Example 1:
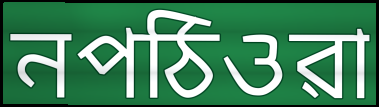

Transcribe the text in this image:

নপঠিওৱা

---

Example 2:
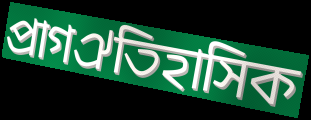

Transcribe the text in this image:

প্ৰাগঐতিহাসিক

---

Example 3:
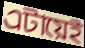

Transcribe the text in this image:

এটায়েই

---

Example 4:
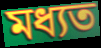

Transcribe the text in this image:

মধ্যত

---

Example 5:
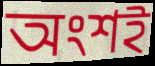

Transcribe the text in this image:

অংশই